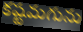
కష్టమగును